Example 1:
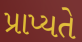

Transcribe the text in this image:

પ્રાપ્યતે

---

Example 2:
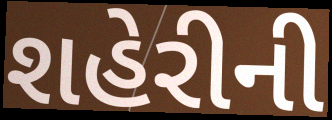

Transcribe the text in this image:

શહેરીની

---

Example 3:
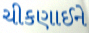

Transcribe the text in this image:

ચીકણાઈને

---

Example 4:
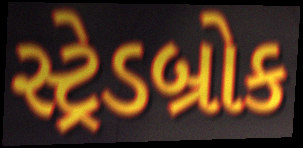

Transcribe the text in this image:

સ્ટ્રેડબ્રોક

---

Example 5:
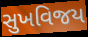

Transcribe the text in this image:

સુખવિજય